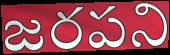
జరపని